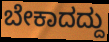
ಬೇಕಾದದ್ದು